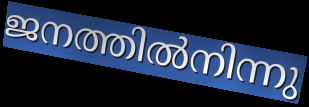
ജനത്തിൽനിന്നു